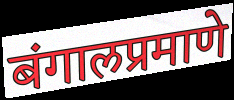
बंगालप्रमाणे